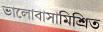
ভালোবাসামিশ্রিত